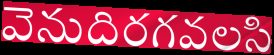
వెనుదిరగవలసి